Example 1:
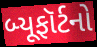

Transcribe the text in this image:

બ્યૂફૉર્ટનો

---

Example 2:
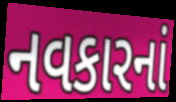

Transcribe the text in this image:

નવકારનાં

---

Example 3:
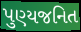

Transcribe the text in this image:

પુણ્યજનિત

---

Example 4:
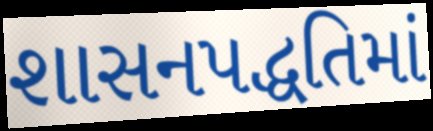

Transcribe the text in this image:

શાસનપદ્ધતિમાં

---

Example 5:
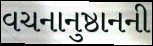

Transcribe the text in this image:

વચનાનુષ્ઠાનની